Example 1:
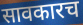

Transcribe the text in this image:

सावकारच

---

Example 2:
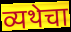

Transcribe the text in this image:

व्यथेचा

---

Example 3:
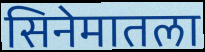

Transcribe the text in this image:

सिनेमातला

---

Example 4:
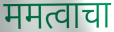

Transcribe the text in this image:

ममत्वाचा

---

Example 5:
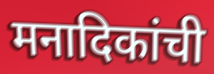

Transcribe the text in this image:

मनादिकांची